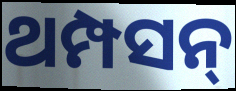
ଥମ୍ପସନ୍